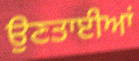
ਉਣਤਾਈਆਂ